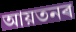
আয়তনৰ